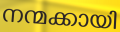
നന്മക്കായി